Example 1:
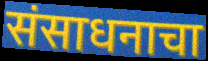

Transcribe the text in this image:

संसाधनाचा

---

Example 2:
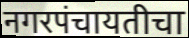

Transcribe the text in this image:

नगरपंचायतीचा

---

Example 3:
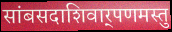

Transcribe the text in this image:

सांबसदाशिवार्पणमस्तु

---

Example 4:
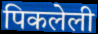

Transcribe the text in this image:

पिकलेली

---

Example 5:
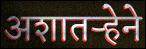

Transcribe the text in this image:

अशातऱ्हेने